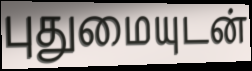
புதுமையுடன்